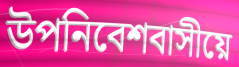
উপনিবেশবাসীয়ে